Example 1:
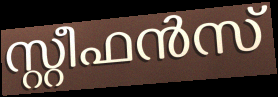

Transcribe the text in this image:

സ്റ്റീഫൻസ്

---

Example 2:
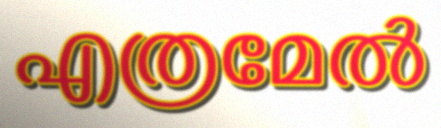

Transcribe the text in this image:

എത്രമേൽ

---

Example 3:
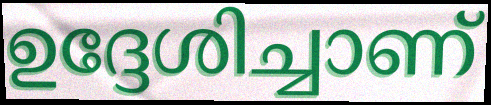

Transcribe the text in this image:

ഉദ്ദേശിച്ചാണ്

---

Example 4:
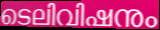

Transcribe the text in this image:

ടെലിവിഷനും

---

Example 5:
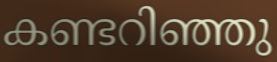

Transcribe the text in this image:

കണ്ടറിഞ്ഞു